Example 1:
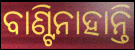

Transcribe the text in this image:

ବାଣ୍ଟିନାହାନ୍ତି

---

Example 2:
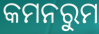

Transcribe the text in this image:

କମନରୁମ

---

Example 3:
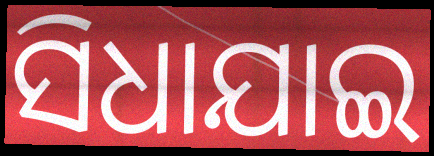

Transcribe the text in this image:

ସିଧାଯାଇ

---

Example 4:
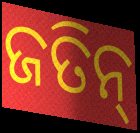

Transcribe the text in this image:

ଜତିନ୍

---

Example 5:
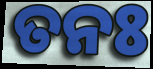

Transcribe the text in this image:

ତନଃ